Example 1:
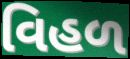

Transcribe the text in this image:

વિહળ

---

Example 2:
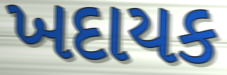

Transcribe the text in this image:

ખદાયક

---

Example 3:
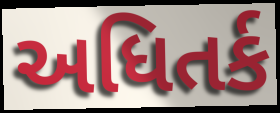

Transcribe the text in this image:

અધિતર્ક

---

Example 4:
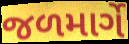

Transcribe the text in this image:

જળમાર્ગે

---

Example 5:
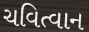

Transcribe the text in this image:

ચવિત્વાન